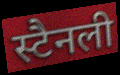
स्टैनली